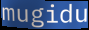
mugidu